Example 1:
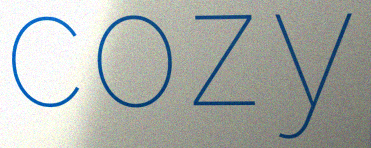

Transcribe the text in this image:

cozy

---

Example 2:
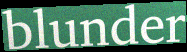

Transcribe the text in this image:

blunder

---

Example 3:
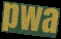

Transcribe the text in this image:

pwa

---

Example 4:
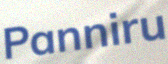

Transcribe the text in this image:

Panniru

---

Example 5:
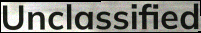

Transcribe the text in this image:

Unclassified